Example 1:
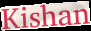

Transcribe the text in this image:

Kishan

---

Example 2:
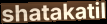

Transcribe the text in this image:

shatakatil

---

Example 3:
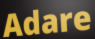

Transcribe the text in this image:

Adare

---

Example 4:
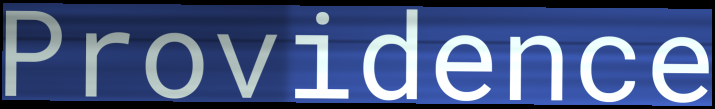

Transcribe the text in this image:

Providence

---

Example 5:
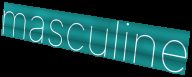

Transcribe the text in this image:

masculine